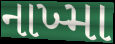
નાખ્મા